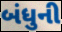
બંધુની